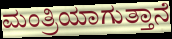
ಮಂತ್ರಿಯಾಗುತ್ತಾನೆ